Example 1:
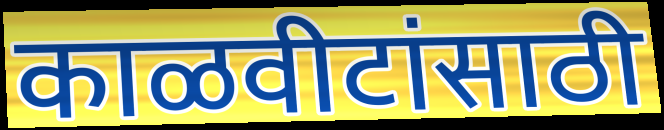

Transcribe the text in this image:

काळवीटांसाठी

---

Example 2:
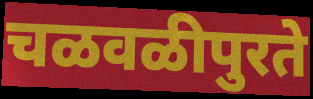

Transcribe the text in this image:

चळवळीपुरते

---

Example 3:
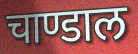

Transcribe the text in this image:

चाण्डाल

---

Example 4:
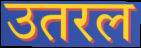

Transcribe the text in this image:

उतरल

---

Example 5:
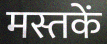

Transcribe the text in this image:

मस्तकें